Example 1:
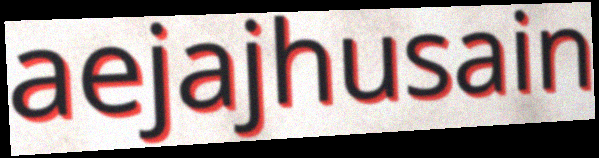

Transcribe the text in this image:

aejajhusain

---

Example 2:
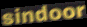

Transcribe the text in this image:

sindoor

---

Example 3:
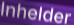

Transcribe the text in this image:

Inhelder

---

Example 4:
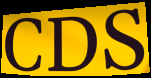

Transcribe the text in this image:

CDS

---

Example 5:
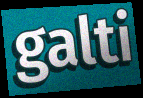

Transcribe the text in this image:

galti